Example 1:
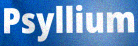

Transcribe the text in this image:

Psyllium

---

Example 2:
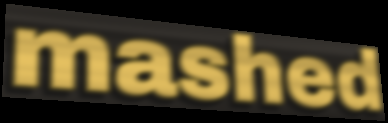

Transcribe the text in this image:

mashed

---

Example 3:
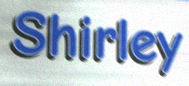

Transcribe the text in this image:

Shirley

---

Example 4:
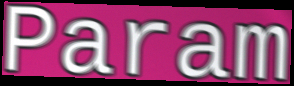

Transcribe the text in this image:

Param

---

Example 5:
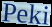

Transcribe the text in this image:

Peki